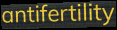
antifertility